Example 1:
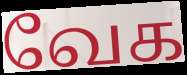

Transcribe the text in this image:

வேக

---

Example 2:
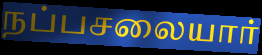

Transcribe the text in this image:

நப்பசலையார்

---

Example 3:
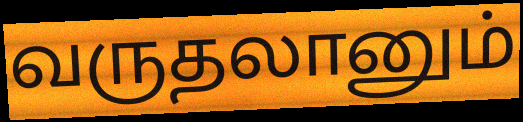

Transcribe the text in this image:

வருதலானும்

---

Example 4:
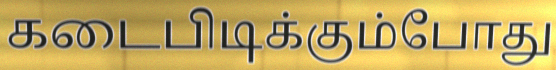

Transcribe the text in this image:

கடைபிடிக்கும்போது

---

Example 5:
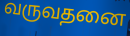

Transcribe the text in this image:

வருவதனை